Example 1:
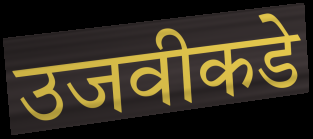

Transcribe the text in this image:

उजवीकडे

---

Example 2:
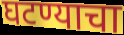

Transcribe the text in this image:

घटण्याचा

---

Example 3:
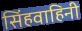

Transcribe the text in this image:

सिंहवाहिनी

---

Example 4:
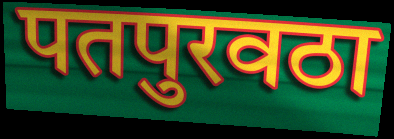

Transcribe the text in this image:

पतपुरवठा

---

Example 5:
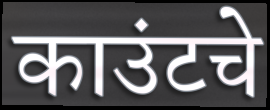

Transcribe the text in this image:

काउंटचे